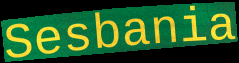
Sesbania